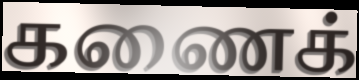
கணைக்